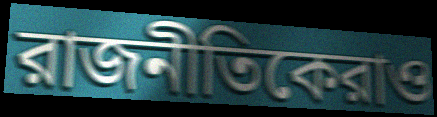
রাজনীতিকেরাও